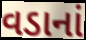
વડાનાં